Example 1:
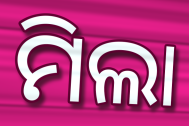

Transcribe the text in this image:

ମିଲା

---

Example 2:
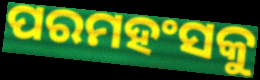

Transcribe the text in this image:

ପରମହଂସକୁ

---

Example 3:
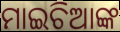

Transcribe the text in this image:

ମାଇଚିଆଙ୍କ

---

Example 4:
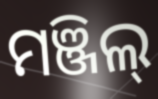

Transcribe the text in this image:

ମଞ୍ଜିଲ୍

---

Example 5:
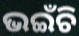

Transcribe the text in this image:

ଭଇଁଚି